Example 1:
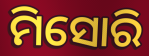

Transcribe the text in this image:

ମିସୋରି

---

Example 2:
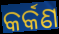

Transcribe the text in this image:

କର୍କଣ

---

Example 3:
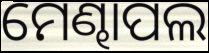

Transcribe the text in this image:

ମେଣ୍ଢାପଲ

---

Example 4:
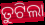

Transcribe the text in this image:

ତୁଟିଲା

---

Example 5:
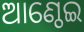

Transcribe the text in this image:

ଆଣ୍ଠେଇ